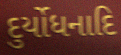
દુર્યોધનાદિ